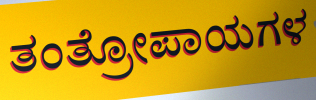
ತಂತ್ರೋಪಾಯಗಳ